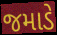
જમાડે